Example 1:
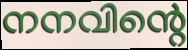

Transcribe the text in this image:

നനവിന്റെ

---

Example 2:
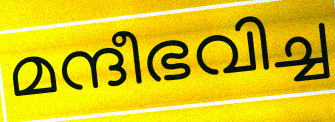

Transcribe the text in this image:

മന്ദീഭവിച്ച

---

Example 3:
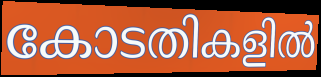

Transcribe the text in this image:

കോടതികളിൽ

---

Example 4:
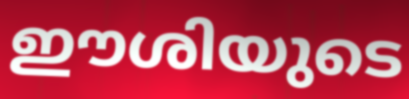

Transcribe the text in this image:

ഈശിയുടെ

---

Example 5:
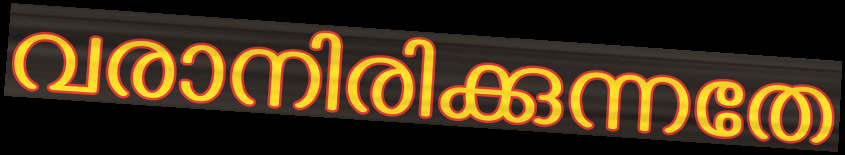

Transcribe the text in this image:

വരാനിരിക്കുന്നതേ